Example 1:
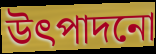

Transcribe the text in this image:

উৎপাদনো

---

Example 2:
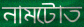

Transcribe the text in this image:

নামটোত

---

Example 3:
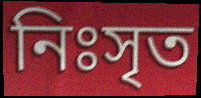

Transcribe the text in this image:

নিঃসৃত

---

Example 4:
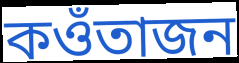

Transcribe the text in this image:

কওঁতাজন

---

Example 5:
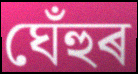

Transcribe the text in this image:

ঘেঁহুৰ